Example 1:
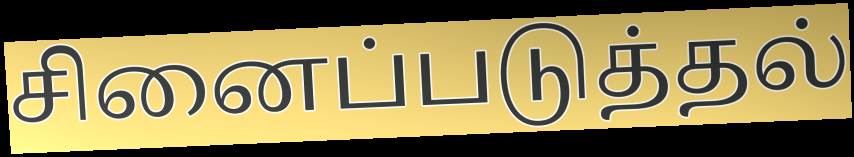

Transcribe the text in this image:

சினைப்படுத்தல்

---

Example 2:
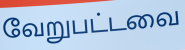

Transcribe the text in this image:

வேறுபட்டவை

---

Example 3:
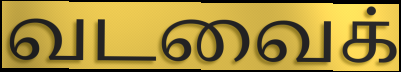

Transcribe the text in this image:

வடவைக்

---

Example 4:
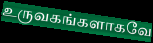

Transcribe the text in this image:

உருவகங்களாகவே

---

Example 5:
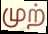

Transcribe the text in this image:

முற்